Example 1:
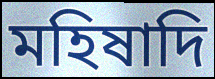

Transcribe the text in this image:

মহিষাদি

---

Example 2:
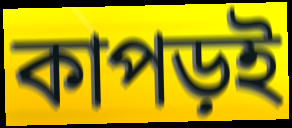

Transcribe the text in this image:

কাপড়ই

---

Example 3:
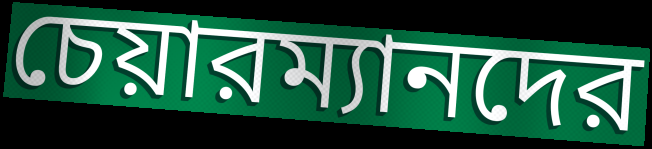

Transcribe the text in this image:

চেয়ারম্যানদের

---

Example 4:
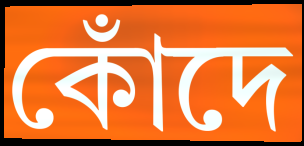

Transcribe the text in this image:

কোঁদে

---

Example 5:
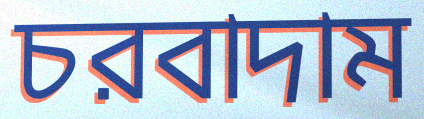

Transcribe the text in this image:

চরবাদাম